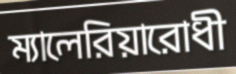
ম্যালেরিয়ারোধী